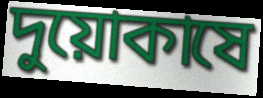
দুয়োকাষে